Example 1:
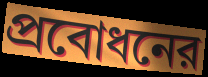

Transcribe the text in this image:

প্রবোধনের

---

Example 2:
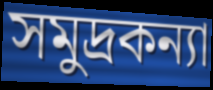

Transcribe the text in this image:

সমুদ্রকন্যা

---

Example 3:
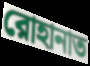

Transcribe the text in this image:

রোহানাত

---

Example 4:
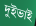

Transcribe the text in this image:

দুইভাই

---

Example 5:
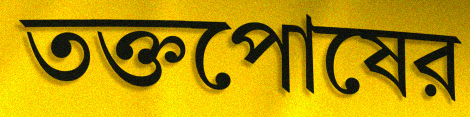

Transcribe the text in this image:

তক্তপোষের